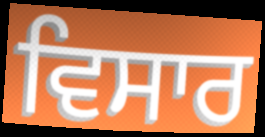
ਵਿਸਾਰ